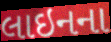
લાઇનના